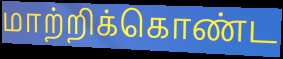
மாற்றிக்கொண்ட